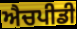
ਐਚਪੀਡੀ